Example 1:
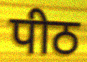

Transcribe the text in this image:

पीठ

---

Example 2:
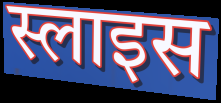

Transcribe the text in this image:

स्लाइस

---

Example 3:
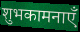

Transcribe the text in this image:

शुभकामनाएँ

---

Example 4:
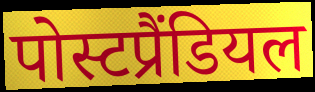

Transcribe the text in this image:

पोस्टप्रैंडियल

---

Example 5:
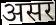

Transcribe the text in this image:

असर